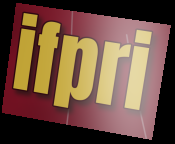
ifpri